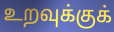
உறவுக்குக்